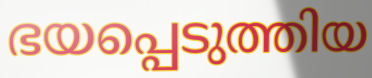
ഭയപ്പെടുത്തിയ